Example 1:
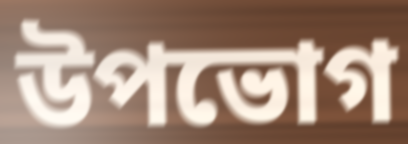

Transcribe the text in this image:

উপভোগ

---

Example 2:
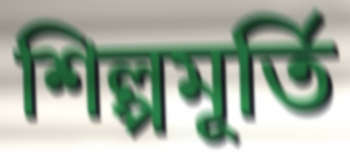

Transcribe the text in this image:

শিল্পমূর্তি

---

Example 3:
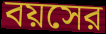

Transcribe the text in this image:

বয়সের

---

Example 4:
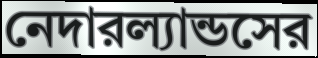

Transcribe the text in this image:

নেদারল্যান্ডসের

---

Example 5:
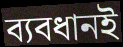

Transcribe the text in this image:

ব্যবধানই